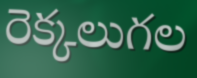
రెక్కలుగల